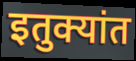
इतुक्यांत